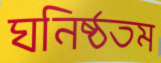
ঘনিষ্ঠতম